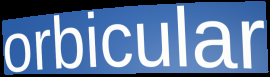
orbicular